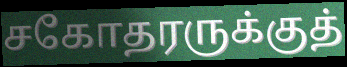
சகோதரருக்குத்